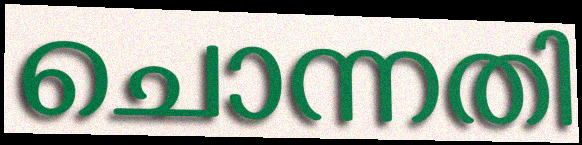
ചൊന്നതി